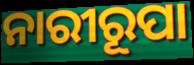
ନାରୀରୂପା